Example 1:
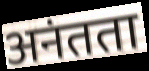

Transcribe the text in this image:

अनंतता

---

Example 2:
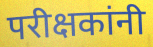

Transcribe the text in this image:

परीक्षकांनी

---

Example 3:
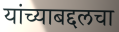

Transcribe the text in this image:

यांच्याबद्दलचा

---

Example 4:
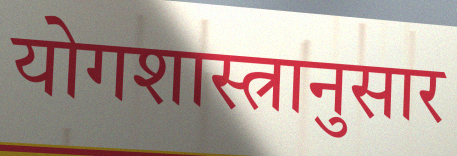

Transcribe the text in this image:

योगशास्त्रानुसार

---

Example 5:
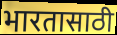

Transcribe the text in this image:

भारतासाठी